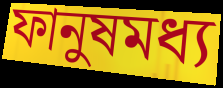
ফানুষমধ্য